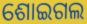
ଶୋଇଗଲ